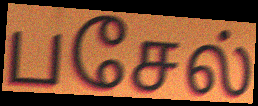
பசேல்